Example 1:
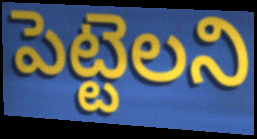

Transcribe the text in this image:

పెట్టెలని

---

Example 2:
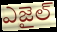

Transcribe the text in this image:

ఎజైల్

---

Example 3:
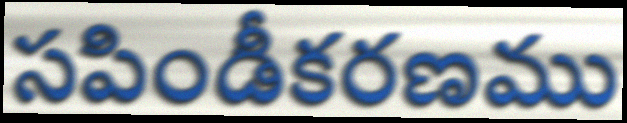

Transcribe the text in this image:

సపిండీకరణము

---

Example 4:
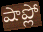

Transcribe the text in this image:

షాప్లో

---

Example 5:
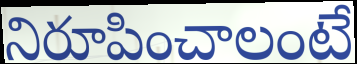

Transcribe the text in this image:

నిరూపించాలంటే